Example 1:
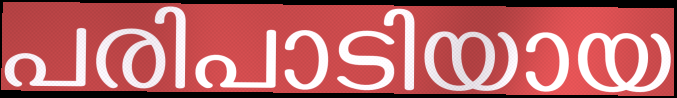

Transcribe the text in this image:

പരിപാടിയായ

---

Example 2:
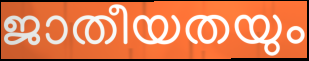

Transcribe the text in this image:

ജാതീയതയും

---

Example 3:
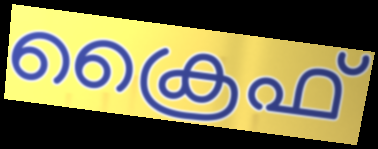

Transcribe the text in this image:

ക്രൈഫ്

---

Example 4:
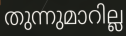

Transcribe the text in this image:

തുന്നുമാറില്ല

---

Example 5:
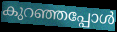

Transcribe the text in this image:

കുറഞ്ഞപ്പോൾ